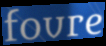
foure